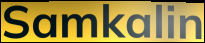
Samkalin